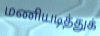
மணியடித்துக்